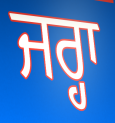
ਜਰ੍ਹਾ